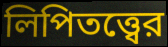
লিপিতত্ত্বের